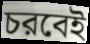
চরবেই